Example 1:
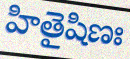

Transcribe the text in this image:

హితైషిణః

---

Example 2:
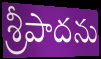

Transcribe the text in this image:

శ్రీపాదను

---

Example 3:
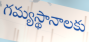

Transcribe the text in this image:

గమ్యస్థానాలకు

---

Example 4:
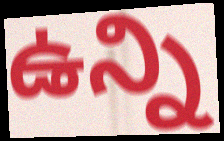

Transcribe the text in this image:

ఉన్ని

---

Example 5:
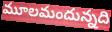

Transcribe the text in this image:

మూలమందున్నది